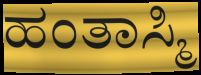
ಹಂತಾಸ್ಮಿ